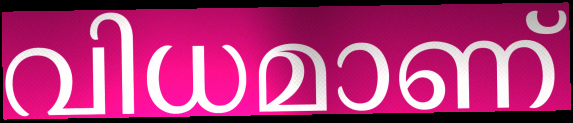
വിധമാണ്